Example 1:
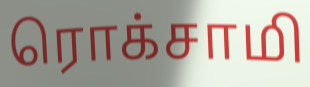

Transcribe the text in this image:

ரொக்சாமி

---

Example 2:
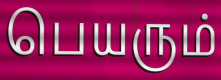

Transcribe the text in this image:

பெயரும்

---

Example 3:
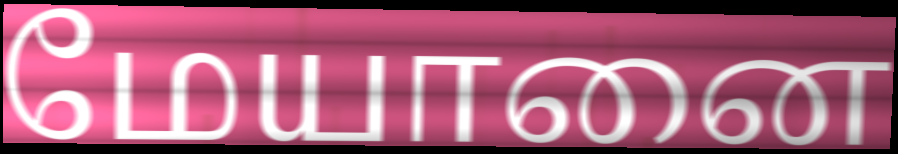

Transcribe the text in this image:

மேயானை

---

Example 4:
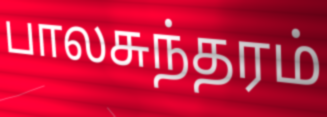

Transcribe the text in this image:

பாலசுந்தரம்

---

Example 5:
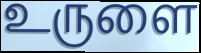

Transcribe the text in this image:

உருளை